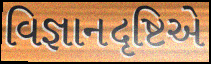
વિજ્ઞાનદૃષ્ટિએ